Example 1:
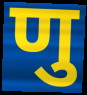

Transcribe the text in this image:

णु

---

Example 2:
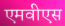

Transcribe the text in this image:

एमवीएस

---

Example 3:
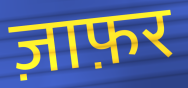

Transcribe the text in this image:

ज़ाफ़र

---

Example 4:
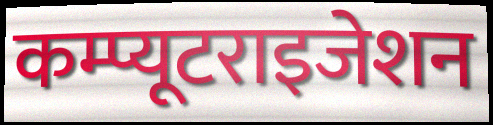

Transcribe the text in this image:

कम्प्यूटराइजेशन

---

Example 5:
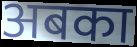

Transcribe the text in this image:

अबका